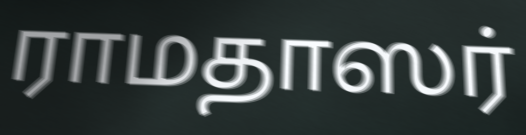
ராமதாஸர்